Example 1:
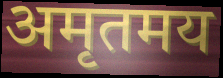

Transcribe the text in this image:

अमृतमय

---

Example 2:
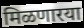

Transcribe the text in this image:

मिळणारया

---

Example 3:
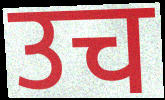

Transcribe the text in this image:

उच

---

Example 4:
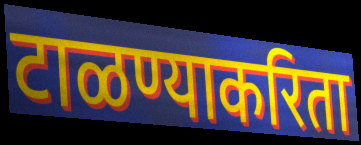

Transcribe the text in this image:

टाळण्याकरिता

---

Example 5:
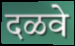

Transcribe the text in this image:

दळवे